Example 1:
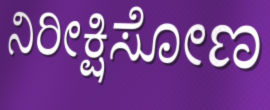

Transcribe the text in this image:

ನಿರೀಕ್ಷಿಸೋಣ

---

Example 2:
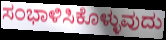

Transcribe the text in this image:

ಸಂಭಾಳಿಸಿಕೊಳ್ಳುವುದು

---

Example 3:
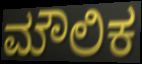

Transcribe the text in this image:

ಮೌಲಿಕ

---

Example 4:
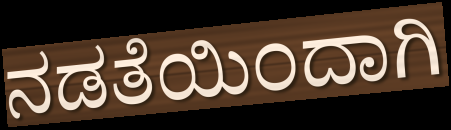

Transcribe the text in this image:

ನಡತೆಯಿಂದಾಗಿ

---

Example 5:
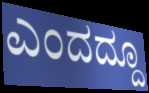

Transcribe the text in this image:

ಎಂದದ್ದೂ